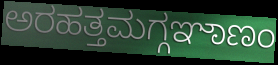
ಅರಹತ್ತಮಗ್ಗಞಾಣಂ